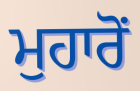
ਮੁਹਾਰੋਂ